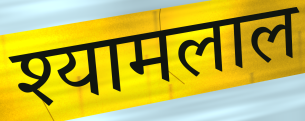
श्यामलाल